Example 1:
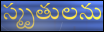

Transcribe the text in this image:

స్మృతులను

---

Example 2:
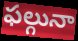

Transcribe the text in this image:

ఫల్గునా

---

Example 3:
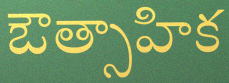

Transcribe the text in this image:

ఔత్సాహిక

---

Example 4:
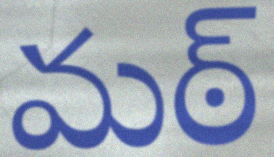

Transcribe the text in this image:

మఠ్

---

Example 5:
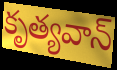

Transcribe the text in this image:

కృత్యవాన్